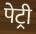
पेट्री